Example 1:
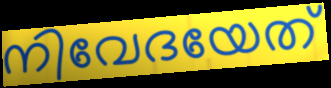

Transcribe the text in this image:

നിവേദയേത്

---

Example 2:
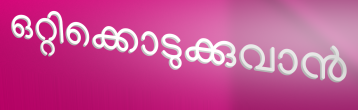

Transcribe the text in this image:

ഒറ്റിക്കൊടുക്കുവാൻ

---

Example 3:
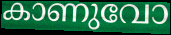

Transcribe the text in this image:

കാണുവോ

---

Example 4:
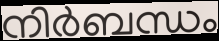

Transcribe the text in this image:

നിർബന്ധം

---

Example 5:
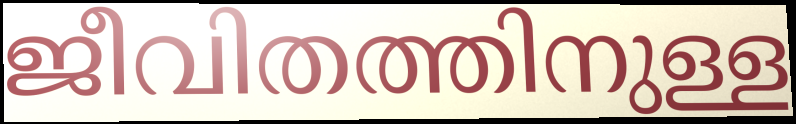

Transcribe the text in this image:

ജീവിതത്തിനുള്ള